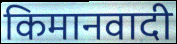
किमानवादी